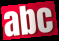
abc